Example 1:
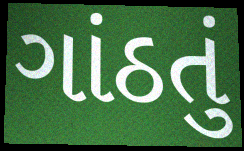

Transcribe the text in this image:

ગાંઠતું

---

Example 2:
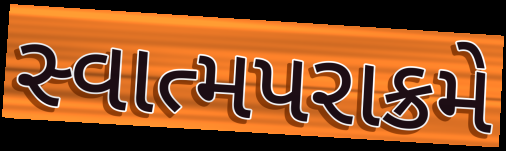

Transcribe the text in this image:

સ્વાત્મપરાક્રમે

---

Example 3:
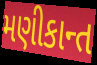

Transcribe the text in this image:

મણીકાન્ત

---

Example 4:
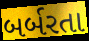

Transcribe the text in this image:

બર્બરતા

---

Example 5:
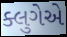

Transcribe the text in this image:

ક્લુગેએ